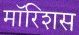
मॉरिशस